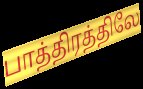
பாத்திரத்திலே